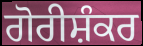
ਗੋਰੀਸ਼ੰਕਰ